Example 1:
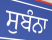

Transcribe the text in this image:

ਸੁਬੰਨਾ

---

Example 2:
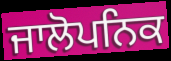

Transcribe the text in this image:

ਜਾਲੋਪਨਿਕ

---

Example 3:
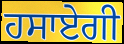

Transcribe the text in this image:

ਹਸਾਏਗੀ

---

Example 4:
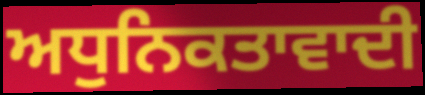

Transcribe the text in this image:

ਅਧੁਨਿਕਤਾਵਾਦੀ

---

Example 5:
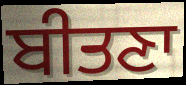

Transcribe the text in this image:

ਬੀਤਣਾ